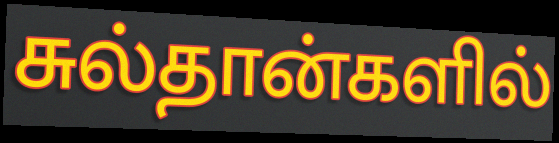
சுல்தான்களில்